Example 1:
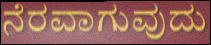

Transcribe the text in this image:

ನೆರವಾಗುವುದು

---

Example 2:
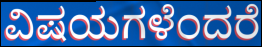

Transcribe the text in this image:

ವಿಷಯಗಳೆಂದರೆ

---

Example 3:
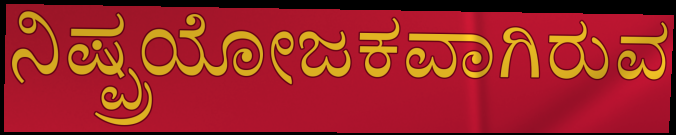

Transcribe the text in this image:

ನಿಷ್ಪ್ರಯೋಜಕವಾಗಿರುವ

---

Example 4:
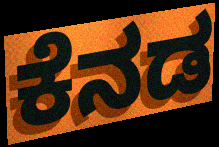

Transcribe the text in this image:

ಕೆನಡ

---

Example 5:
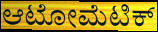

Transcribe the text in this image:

ಆಟೋಮೆಟಿಕ್